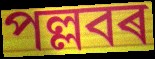
পল্লবৰ